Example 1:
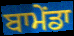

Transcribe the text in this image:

ਬਾਮੇਂਡਾ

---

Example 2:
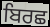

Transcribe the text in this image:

ਬਿਰਛ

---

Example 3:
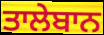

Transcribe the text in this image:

ਤਾਲੇਬਾਨ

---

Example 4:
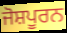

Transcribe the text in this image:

ਜੋਸ਼ਪੂਰਨ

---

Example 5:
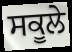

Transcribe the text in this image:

ਸਕੂਲੇ